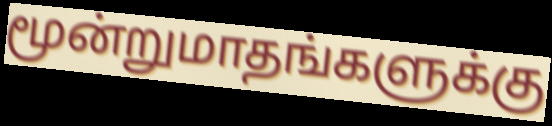
மூன்றுமாதங்களுக்கு